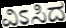
ವಿಽಸಿದ